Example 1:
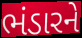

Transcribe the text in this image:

ભંડારને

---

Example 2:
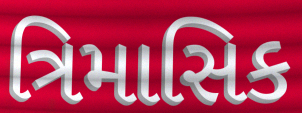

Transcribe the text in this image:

ત્રિમાસિક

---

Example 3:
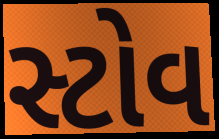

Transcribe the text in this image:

સ્ટોવ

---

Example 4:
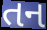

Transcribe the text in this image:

તન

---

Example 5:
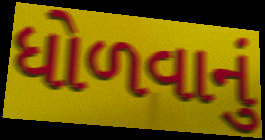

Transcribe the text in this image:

ધોળવાનું